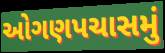
ઓગણપચાસમું